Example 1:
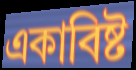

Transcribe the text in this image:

একাবিষ্ট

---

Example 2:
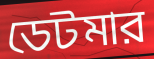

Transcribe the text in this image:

ডেটমার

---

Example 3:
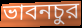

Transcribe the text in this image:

ভাবনচুর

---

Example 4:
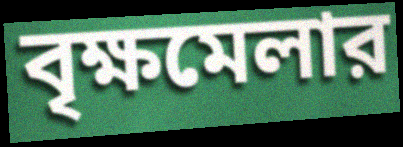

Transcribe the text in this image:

বৃক্ষমেলার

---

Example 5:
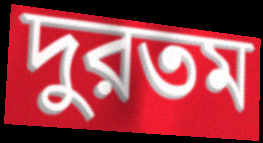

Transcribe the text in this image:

দুরতম